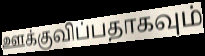
ஊக்குவிப்பதாகவும்